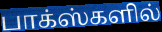
பாக்ஸ்களில்